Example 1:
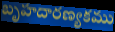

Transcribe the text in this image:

బృహదారణ్యకము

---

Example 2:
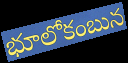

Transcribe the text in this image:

భూలోకంబున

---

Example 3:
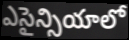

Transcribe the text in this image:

ఎసైన్సియాలో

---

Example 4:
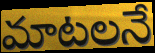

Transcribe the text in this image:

మాటలనే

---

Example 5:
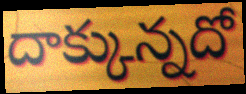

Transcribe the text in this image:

దాక్కున్నదో